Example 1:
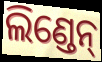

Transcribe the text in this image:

ଲିଣ୍ଡେନ୍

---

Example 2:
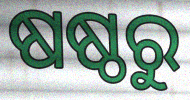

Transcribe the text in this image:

ଷଷ୍ଠରୁ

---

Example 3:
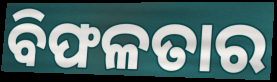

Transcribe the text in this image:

ବିଫଳତାର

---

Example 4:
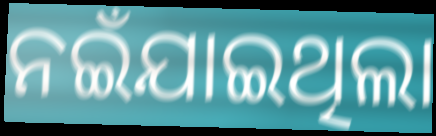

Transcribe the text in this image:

ନଇଁଯାଇଥିଲା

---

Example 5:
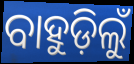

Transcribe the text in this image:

ବାହୁଡ଼ିଲୁଁ